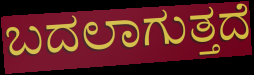
ಬದಲಾಗುತ್ತದೆ